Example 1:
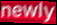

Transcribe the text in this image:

newly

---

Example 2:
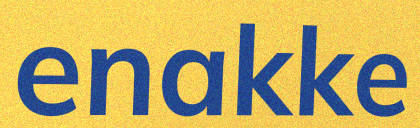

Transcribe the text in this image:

enakke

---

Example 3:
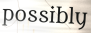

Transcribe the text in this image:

possibly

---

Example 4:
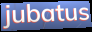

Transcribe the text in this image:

jubatus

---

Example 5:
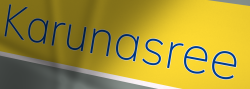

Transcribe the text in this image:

Karunasree